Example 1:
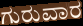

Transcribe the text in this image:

ಗುರುವಾರ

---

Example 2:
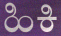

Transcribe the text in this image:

ಹಿಕಿ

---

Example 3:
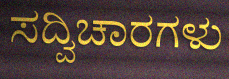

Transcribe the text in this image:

ಸದ್ವಿಚಾರಗಳು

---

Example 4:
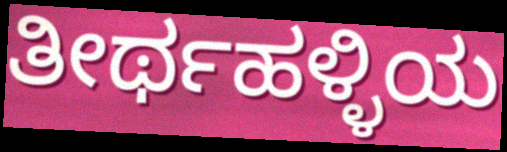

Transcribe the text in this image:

ತೀರ್ಥಹಳ್ಳಿಯ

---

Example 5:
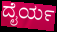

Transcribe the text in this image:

ದೈರ್ಯ